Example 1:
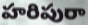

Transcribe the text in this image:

హరిపురా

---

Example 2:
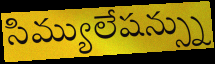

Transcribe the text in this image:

సిమ్యులేషన్స్ను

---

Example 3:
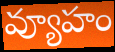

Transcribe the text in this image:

వ్యూహం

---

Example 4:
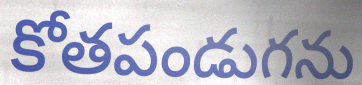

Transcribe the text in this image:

కోతపండుగను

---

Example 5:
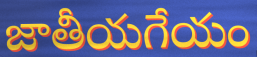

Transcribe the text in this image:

జాతీయగేయం